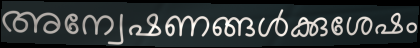
അന്വേഷണങ്ങൾക്കുശേഷം